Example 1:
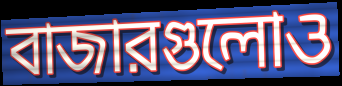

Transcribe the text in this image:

বাজারগুলোও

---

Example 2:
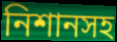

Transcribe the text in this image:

নিশানসহ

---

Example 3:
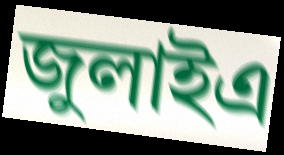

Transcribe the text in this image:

জুলাইএ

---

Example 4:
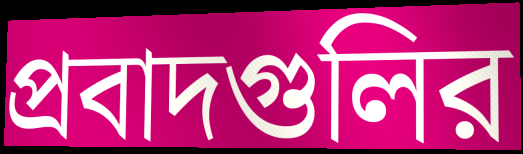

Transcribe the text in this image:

প্রবাদগুলির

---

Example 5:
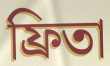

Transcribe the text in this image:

ফ্রিতা